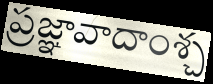
ప్రజ్ఞావాదాంశ్చ